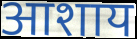
आशाय